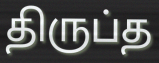
திருப்த